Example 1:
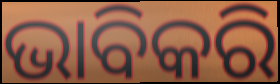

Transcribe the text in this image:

ଭାବିକରି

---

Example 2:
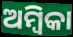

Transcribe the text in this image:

ଅମ୍ବିକା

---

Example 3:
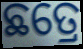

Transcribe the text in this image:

ଛତ୍ରେ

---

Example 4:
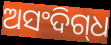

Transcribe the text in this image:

ଅସଂଦିଗ୍‌ଧ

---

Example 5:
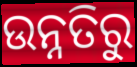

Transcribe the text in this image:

ଉନ୍ନତିରୁ